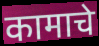
कामाचे